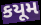
કયૂમ